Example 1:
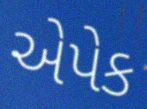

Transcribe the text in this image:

એપેક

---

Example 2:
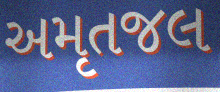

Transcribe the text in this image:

અમૃતજલ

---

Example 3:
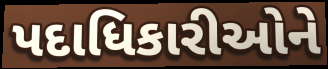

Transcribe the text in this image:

પદાધિકારીઓને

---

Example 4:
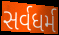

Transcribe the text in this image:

સર્વધર્મ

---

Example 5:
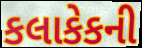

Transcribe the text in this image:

કલાકેકની